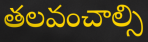
తలవంచాల్సి